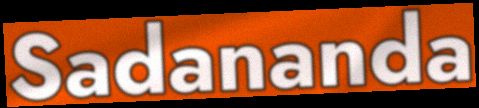
Sadananda